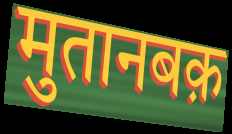
मुतानबक़